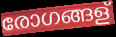
രോഗങ്ങള്